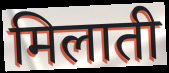
मिलाती